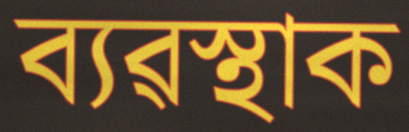
ব্যৱস্থাক